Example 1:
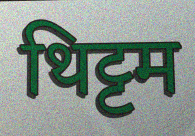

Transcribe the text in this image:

थिट्टम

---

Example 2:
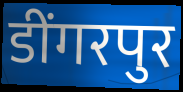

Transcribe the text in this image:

डींगरपुर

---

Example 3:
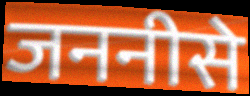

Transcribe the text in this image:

जननीसे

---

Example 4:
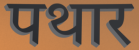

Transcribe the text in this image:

पथार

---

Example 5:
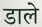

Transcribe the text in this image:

डाले